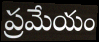
ప్రమేయం